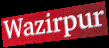
Wazirpur